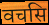
वचसि